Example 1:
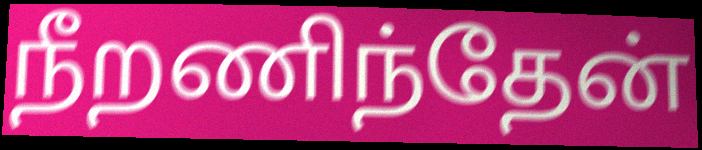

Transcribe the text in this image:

நீறணிந்தேன்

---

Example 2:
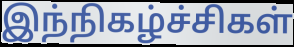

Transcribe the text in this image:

இந்நிகழ்ச்சிகள்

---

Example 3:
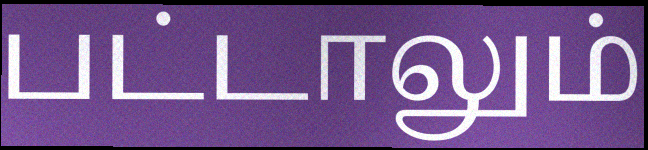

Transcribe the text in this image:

பட்டாலும்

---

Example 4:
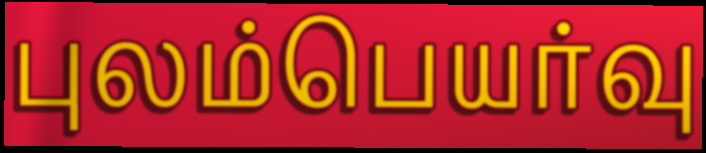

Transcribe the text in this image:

புலம்பெயர்வு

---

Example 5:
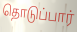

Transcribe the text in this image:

தொடுப்பார்